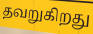
தவறுகிறது